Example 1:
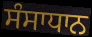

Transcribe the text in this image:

ਸੰਸਾਧਾਨ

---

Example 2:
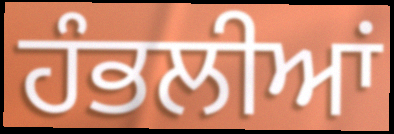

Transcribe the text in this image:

ਹੰਭਲੀਆਂ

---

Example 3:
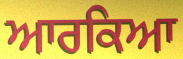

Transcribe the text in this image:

ਆਰਕਿਆ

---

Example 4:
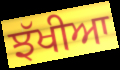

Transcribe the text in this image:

ਝੱਖੀਆ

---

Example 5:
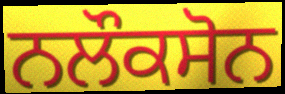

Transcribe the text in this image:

ਨਲੌਕਸੋਨ